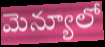
మెన్యూలో